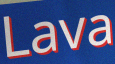
Lava